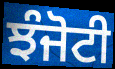
ਝੰਜੋਟੀ